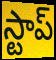
స్టాప్